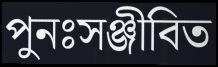
পুনঃসঞ্জীবিত